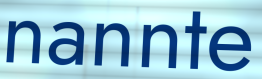
nannte